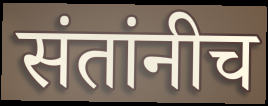
संतांनीच